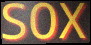
SOX